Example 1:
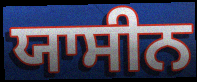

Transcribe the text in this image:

ਯਾਸੀਨ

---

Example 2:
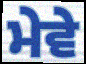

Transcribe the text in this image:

ਮੇਵੇ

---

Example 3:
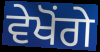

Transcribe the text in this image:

ਵੇਖੋਂਗੇ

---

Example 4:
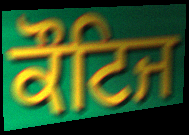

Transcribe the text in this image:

ਕੌਟਿਜ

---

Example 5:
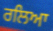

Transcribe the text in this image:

ਰਲਿਆ